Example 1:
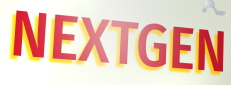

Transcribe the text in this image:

NEXTGEN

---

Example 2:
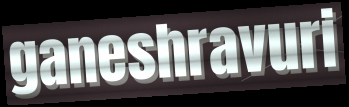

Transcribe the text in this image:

ganeshravuri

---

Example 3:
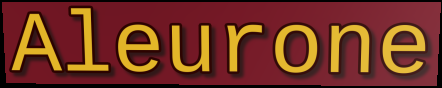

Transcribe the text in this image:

Aleurone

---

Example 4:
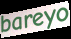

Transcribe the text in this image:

bareyo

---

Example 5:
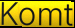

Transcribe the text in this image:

Komt